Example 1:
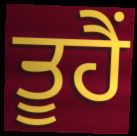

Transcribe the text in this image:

ਤੂਹੈਂ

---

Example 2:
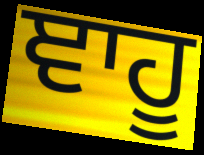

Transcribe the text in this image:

ਞਾਹੂ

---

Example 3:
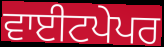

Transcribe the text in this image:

ਵਾਈਟਪੇਪਰ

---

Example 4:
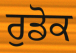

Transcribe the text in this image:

ਰੁਡੋਕ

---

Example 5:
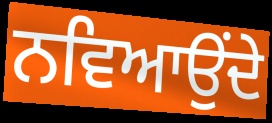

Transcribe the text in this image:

ਨਵਿਆਉਂਦੇ